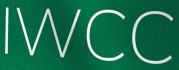
IWCC